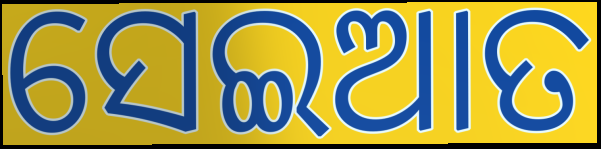
ସେଇଆତ